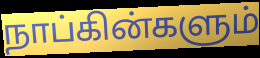
நாப்கின்களும்